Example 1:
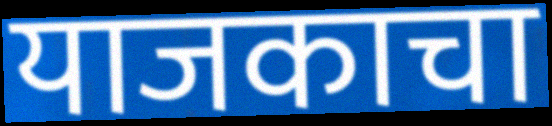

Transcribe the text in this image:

याजकाचा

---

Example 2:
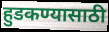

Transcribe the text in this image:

हुडकण्यासाठी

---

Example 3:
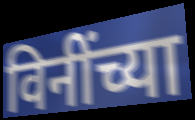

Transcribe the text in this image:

विनींच्या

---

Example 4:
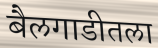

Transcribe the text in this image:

बैलगाडीतला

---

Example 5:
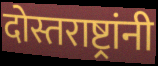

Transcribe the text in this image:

दोस्तराष्ट्रांनी